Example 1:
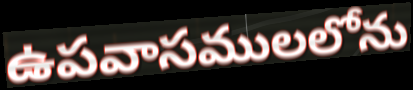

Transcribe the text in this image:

ఉపవాసములలోను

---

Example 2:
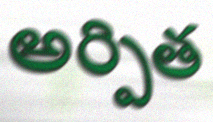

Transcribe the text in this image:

అర్పిత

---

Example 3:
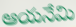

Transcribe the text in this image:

ఆయనేమి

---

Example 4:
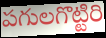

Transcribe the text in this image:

పగులగొట్టిరి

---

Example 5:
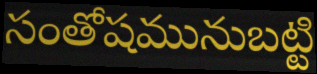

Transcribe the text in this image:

సంతోషమునుబట్టి